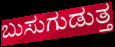
ಬುಸುಗುಡುತ್ತ